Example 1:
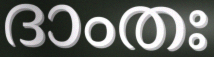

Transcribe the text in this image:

ദാംതഃ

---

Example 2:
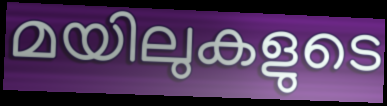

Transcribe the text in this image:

മയിലുകളുടെ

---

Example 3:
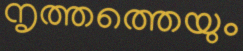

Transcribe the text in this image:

നൃത്തത്തെയും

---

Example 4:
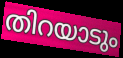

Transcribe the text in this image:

തിറയാടും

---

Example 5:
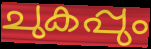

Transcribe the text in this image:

ചുകപ്പും